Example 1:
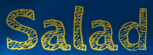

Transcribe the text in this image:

Salad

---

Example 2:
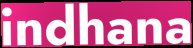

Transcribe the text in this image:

indhana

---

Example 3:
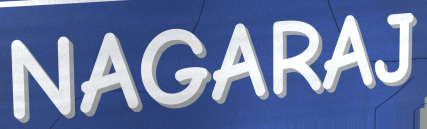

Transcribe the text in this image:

NAGARAJ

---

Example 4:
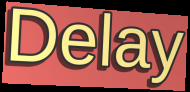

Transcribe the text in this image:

Delay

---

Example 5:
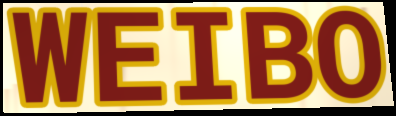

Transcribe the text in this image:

WEIBO